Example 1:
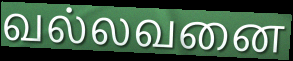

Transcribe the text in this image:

வல்லவனை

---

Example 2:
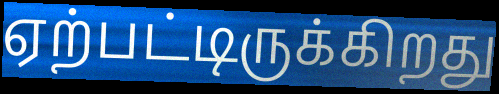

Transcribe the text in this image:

ஏற்பட்டிருக்கிறது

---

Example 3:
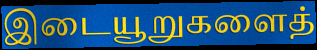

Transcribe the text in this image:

இடையூறுகளைத்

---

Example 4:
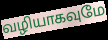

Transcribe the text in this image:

வழியாகவுமே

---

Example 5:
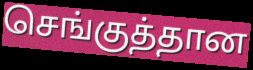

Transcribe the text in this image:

செங்குத்தான